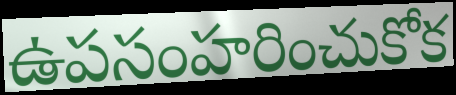
ఉపసంహరించుకోక